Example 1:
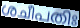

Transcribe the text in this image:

ശചീപതിഃ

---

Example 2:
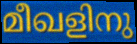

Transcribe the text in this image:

മീഖളിനു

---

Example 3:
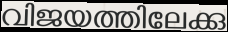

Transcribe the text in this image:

വിജയത്തിലേക്കു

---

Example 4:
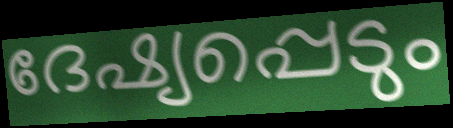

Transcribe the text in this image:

ദേഷ്യപ്പെടും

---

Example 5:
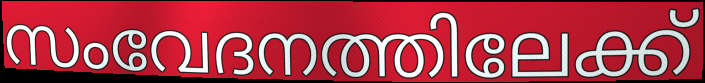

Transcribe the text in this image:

സംവേദനത്തിലേക്ക്